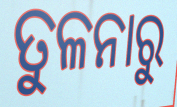
ତୁଳନାରୁ